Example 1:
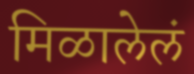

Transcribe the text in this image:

मिळालेलं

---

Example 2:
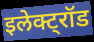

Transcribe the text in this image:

इलेक्ट्रॉड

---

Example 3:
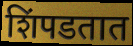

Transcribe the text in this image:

शिंपडतात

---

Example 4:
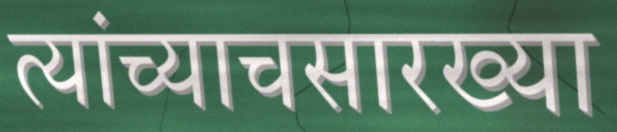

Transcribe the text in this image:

त्यांच्याचसारख्या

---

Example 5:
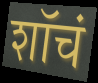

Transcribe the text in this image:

शॉचं